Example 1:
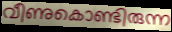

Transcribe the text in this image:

വീണുകൊണ്ടിരുന്ന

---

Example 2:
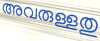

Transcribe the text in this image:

അവരുള്ളതു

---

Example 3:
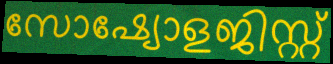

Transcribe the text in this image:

സോഷ്യോളജിസ്റ്റ്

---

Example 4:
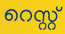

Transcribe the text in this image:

റെസ്റ്റ്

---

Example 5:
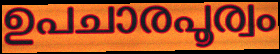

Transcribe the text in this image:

ഉപചാരപൂര്വം